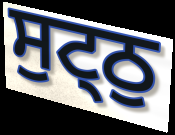
ਸੁਟ੍ਠੁ